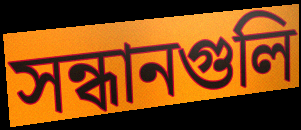
সন্ধানগুলি